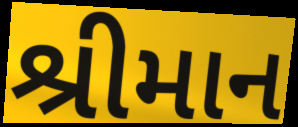
શ્રીમાન